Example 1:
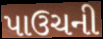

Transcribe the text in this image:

પાઉચની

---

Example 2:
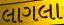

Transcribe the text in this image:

લાગલા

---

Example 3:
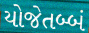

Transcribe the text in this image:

યોજેતબ્બં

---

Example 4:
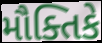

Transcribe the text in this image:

મૌક્તિકે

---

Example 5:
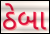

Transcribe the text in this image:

ઠેબા